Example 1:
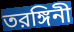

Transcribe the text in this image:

তরঙ্গিনী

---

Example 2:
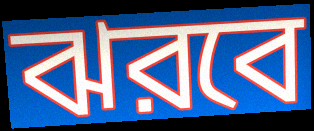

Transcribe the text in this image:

ঝরবে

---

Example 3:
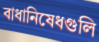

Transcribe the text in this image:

বাধানিষেধগুলি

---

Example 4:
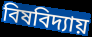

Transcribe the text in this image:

বিষবিদ্যায়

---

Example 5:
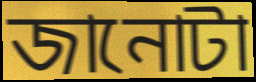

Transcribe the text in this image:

জানোটা